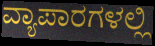
ವ್ಯಾಪಾರಗಳಲ್ಲಿ